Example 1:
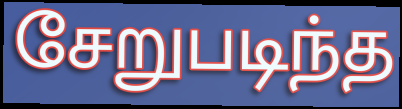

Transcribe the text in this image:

சேறுபடிந்த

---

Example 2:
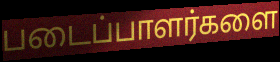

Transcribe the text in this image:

படைப்பாளர்களை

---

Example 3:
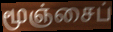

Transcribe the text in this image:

மூஞ்சைப்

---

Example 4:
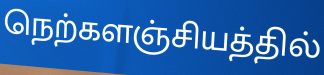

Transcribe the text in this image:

நெற்களஞ்சியத்தில்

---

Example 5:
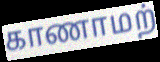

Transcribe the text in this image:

காணாமற்